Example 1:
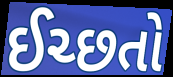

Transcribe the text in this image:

ઈચ્છતો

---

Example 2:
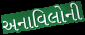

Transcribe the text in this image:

અનાવિલોની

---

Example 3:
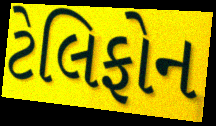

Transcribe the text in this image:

ટેલિફોન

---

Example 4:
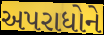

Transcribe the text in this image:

અપરાધોને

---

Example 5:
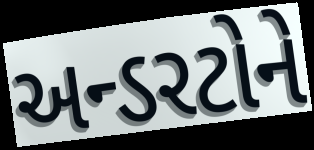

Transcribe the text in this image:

અન્ડરટોને